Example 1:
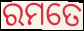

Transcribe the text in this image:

ରମତେ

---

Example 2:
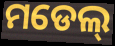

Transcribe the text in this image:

ମଡେଲ୍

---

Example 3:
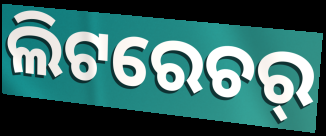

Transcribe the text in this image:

ଲିଟରେଚର୍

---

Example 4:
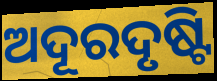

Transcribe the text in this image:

ଅଦୂରଦୃଷ୍ଟି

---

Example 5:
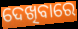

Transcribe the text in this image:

ଦେଖିବାରେ